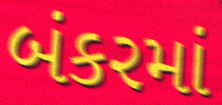
બંકરમાં